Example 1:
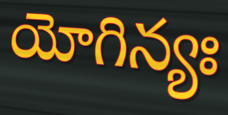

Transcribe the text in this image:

యోగిన్యః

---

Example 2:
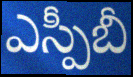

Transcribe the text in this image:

ఎస్పీబీ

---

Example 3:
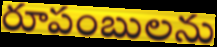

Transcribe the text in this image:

రూపంబులను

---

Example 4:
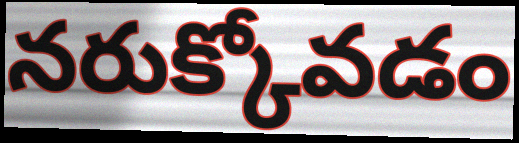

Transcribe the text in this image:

నరుక్కోవడం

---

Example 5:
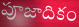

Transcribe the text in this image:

పూజాదికం